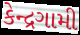
કેન્દ્રગામી